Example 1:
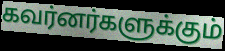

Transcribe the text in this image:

கவர்னர்களுக்கும்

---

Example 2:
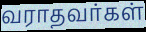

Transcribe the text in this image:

வராதவர்கள்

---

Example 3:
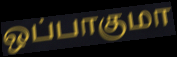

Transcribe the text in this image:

ஒப்பாகுமா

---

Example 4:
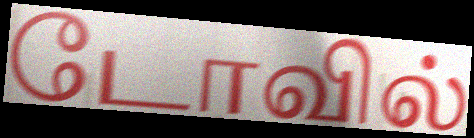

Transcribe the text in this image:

டோவில்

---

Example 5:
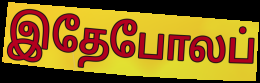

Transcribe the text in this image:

இதேபோலப்